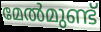
മേൽമുണ്ട്